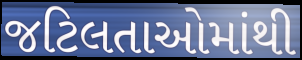
જટિલતાઓમાંથી